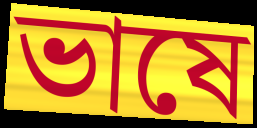
ভাষে